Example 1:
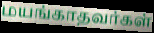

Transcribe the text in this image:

மயங்காதவர்கள்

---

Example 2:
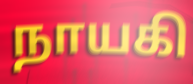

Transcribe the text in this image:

நாயகி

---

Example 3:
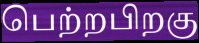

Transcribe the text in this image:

பெற்றபிறகு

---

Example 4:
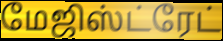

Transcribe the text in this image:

மேஜிஸ்ட்ரேட்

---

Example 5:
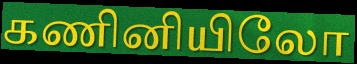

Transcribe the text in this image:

கணினியிலோ